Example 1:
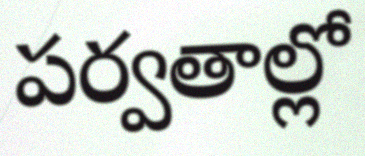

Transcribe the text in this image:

పర్వతాల్లో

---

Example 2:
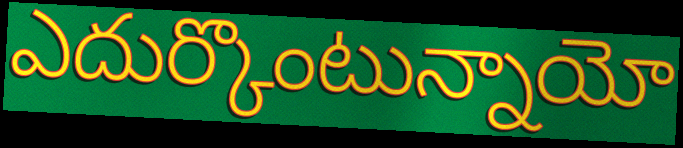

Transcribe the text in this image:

ఎదుర్కొంటున్నాయో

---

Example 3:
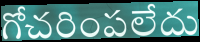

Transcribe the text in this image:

గోచరింపలేదు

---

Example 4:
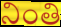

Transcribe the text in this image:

నింతి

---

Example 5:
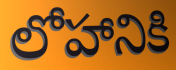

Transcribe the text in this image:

లోహానికి